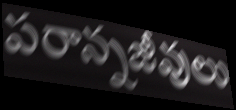
పరాన్నజీవులు